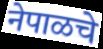
नेपाळचे